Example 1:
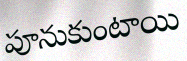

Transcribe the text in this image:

పూనుకుంటాయి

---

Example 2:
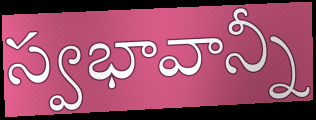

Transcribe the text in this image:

స్వభావాన్నీ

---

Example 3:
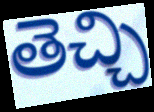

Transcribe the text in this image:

తెచ్చి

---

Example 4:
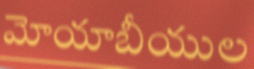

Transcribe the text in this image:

మోయాబీయుల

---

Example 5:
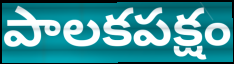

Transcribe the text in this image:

పాలకపక్షం